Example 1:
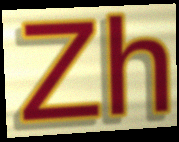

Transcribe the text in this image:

Zh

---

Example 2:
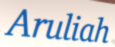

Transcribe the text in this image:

Aruliah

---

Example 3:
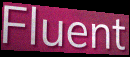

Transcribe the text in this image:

Fluent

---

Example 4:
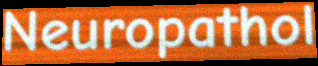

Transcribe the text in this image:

Neuropathol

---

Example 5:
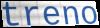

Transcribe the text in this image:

treno